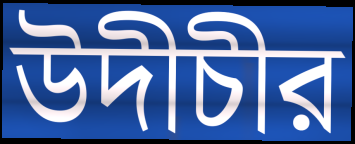
উদীচীর